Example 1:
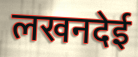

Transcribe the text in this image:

लखनदेई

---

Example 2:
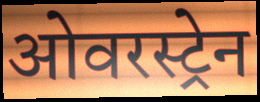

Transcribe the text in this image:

ओवरस्ट्रेन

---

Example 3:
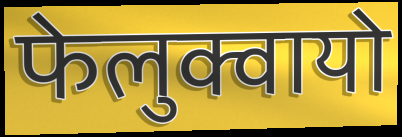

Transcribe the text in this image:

फेलुक्वायो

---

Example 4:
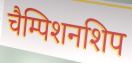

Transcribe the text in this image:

चैम्पिशनशिप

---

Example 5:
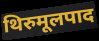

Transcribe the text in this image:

थिरुमूलपाद